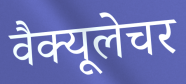
वैक्यूलेचर